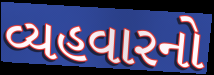
વ્યહવારનો